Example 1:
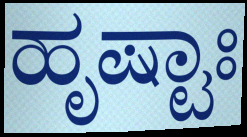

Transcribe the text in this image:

ಹೃಷ್ಟಾಃ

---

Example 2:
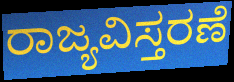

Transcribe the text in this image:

ರಾಜ್ಯವಿಸ್ತರಣೆ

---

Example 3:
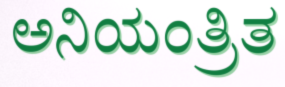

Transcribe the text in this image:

ಅನಿಯಂತ್ರಿತ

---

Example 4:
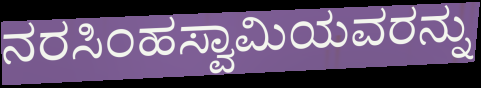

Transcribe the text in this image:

ನರಸಿಂಹಸ್ವಾಮಿಯವರನ್ನು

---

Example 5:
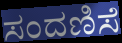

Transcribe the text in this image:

ಸಂದಣಿಸೆ